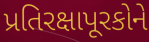
પ્રતિરક્ષાપૂરકોને